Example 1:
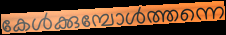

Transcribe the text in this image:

കേൾക്കുമ്പോൾത്തന്നെ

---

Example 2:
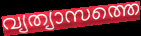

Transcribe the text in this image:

വ്യത്യാസത്തെ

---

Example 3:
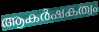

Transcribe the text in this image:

ആകർഷകത്വം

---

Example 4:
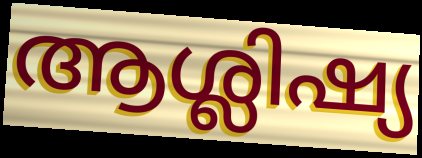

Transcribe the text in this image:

ആശ്ലിഷ്യ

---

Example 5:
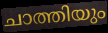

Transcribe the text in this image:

ചാത്തിയും